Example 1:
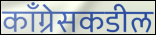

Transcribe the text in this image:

काँग्रेसकडील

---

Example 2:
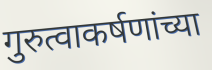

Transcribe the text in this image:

गुरुत्वाकर्षणांच्या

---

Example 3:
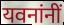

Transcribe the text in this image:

यवनांनीं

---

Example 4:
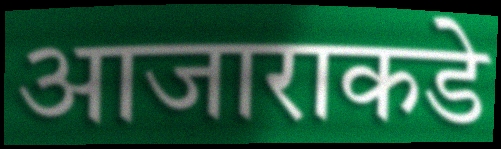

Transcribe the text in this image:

आजाराकडे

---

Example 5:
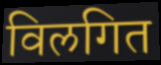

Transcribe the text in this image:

विलगित